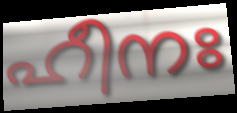
ഹീനഃ